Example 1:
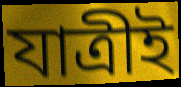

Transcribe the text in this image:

যাত্রীই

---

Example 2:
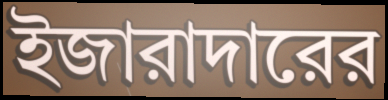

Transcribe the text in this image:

ইজারাদারের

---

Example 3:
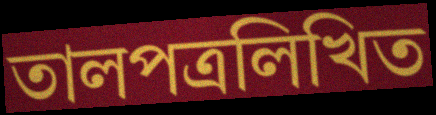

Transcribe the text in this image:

তালপত্রলিখিত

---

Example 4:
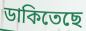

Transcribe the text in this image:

ডাকিতেছে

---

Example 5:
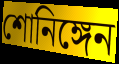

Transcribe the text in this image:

শোনিঙ্গেন